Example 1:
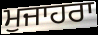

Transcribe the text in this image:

ਮੁਜਾਹਰਾ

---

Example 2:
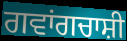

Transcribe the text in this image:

ਗਵਾਂਗਚਾਸ਼ੀ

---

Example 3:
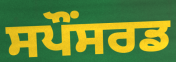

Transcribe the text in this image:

ਸਪੌਂਸਰਡ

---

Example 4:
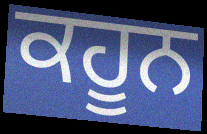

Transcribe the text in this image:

ਕਹੂਨ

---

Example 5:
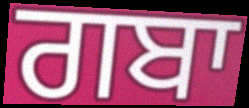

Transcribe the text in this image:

ਗਬਾ